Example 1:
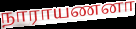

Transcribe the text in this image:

நாராயணனா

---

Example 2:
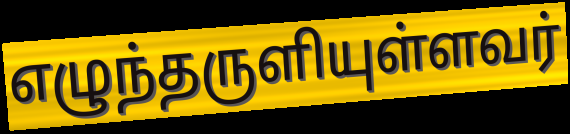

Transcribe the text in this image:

எழுந்தருளியுள்ளவர்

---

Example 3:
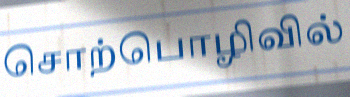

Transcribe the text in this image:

சொற்பொழிவில்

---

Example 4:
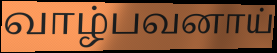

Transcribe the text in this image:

வாழ்பவனாய்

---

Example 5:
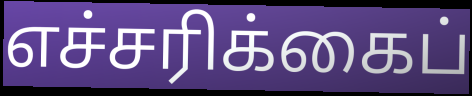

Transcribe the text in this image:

எச்சரிக்கைப்